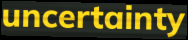
uncertainty